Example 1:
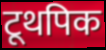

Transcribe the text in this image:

टूथपिक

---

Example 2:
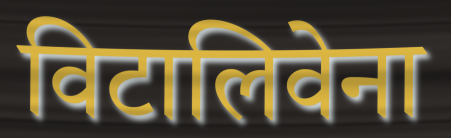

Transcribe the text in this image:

विटालिवेना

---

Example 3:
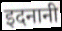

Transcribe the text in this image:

इदनानी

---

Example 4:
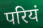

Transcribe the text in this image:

परियं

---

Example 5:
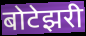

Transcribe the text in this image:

बोटेझरी